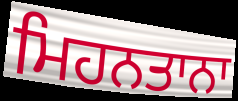
ਮਿਹਨਤਾਨਾ